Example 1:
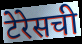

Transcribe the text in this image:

टेरेसची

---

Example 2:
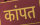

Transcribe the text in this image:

कांपत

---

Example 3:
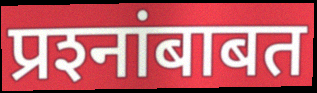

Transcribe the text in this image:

प्रश्‍नांबाबत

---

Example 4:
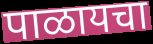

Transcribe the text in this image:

पाळायचा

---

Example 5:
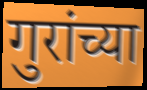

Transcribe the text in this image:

गुरांच्या